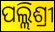
ପଲ୍ଲିଶ୍ରୀ